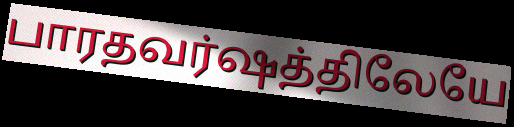
பாரதவர்ஷத்திலேயே